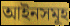
আইনসমূহ